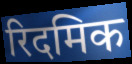
रिदमिक